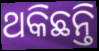
ଥକିଛନ୍ତି